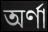
অর্ণা